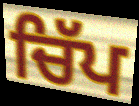
ਚਿੱਪ